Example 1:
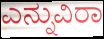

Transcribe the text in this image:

ಎನ್ನುವಿರಾ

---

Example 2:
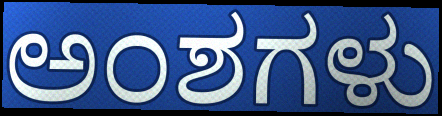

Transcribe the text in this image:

ಅಂಶಗಳು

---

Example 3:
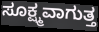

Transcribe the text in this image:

ಸೂಕ್ಷ್ಮವಾಗುತ್ತ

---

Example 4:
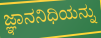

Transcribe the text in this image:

ಜ್ಞಾನನಿಧಿಯನ್ನು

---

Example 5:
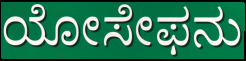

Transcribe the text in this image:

ಯೋಸೇಫನು